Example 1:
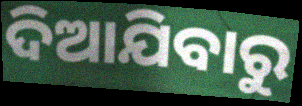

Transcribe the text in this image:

ଦିଆଯିବାରୁ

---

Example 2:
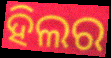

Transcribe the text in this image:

ହିଲର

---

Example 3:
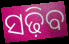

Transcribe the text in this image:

ସଢ଼ିବ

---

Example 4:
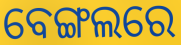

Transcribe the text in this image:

ବେଙ୍ଗଲରେ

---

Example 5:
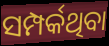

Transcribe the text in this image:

ସମ୍ପର୍କଥିବା